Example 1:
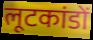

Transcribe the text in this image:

लूटकांडों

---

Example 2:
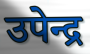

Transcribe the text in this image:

उपेन्द्र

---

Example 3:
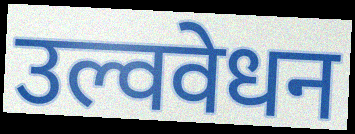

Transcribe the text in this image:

उल्ववेधन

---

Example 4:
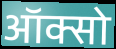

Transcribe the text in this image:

ऑक्सो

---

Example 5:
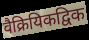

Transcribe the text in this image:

वैक्रियिकद्विक